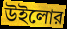
উইলোর